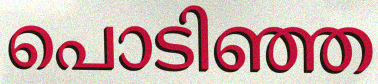
പൊടിഞ്ഞ